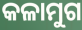
କଳାମୁଗ